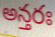
అన్తరః